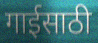
गाईसाठी